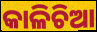
କାଳିଚିଆ